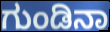
ಗುಂಡಿನಾ